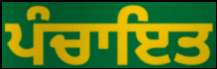
ਪੰਚਾਇਤ